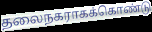
தலைநகராகக்கொண்டு